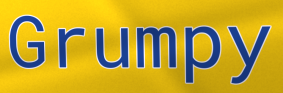
Grumpy